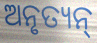
ଅନୃତ୍ୟନ୍